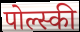
पोल्स्की